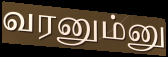
வரனும்னு